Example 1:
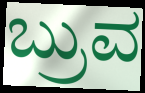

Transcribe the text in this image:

ಬ್ರುವ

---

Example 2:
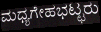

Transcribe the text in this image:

ಮಧ್ಯಗೇಹಭಟ್ಟರು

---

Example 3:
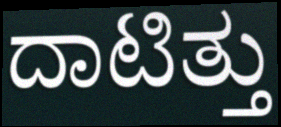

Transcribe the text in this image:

ದಾಟಿತ್ತು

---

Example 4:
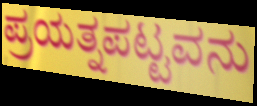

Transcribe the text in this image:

ಪ್ರಯತ್ನಪಟ್ಟವನು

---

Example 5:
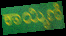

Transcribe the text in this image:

ಕಾಯ್ಕಿಣಿ